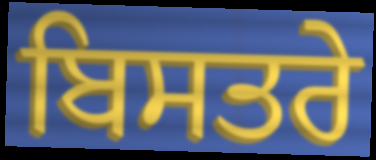
ਬਿਸਤਰੇ